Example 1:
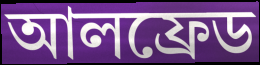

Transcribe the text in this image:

আলফ্রেড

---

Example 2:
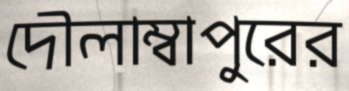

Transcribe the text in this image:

দৌলাম্বাপুরের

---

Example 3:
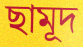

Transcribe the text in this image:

ছামূদ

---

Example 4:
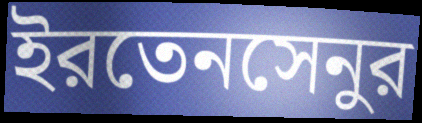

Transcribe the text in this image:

ইরতেনসেনুর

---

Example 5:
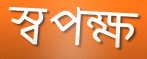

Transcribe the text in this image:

স্বপক্ষ